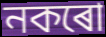
নকৰো